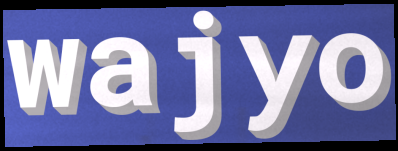
wajyo